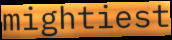
mightiest